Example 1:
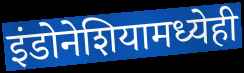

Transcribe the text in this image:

इंडोनेशियामध्येही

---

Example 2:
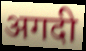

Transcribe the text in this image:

अगदी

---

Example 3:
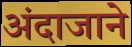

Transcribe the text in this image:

अंदाजाने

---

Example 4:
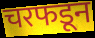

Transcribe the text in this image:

चरफडून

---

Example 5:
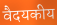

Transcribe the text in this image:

वैदयकीय